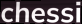
chessi